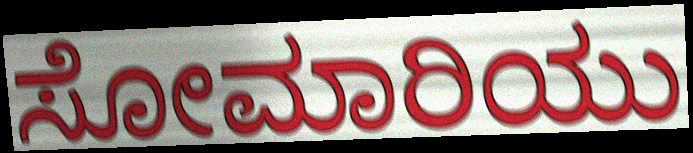
ಸೋಮಾರಿಯು